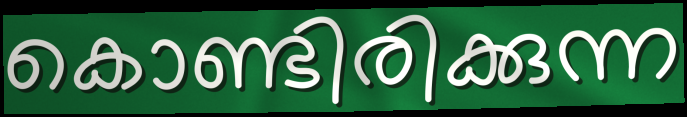
കൊണ്ടിരിക്കുന്ന